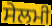
ਸੇਲਮੀ